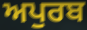
ਅਪੁਰਬ